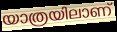
യാത്രയിലാണ്